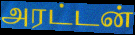
அரட்டன்